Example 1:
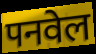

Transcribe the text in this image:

पनवेल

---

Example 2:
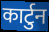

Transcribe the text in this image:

कार्टुन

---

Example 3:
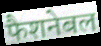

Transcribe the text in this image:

फैशनेबल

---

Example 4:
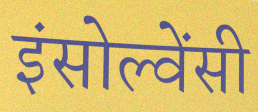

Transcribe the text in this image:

इंसोल्वेंसी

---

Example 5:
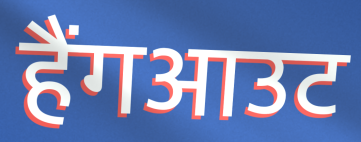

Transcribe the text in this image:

हैंगआउट